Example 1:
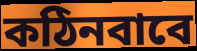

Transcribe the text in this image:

কঠিনবাবে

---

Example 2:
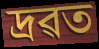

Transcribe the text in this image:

দ্ৰৱত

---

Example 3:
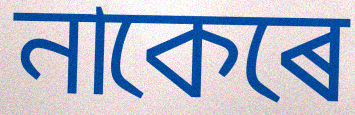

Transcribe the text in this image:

নাকেৰে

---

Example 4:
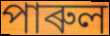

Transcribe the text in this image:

পাৰুল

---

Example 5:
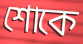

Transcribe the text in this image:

শোকে